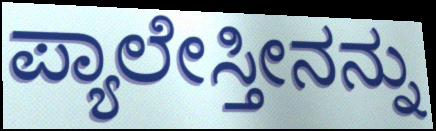
ಪ್ಯಾಲೇಸ್ತೀನನ್ನು